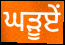
ਘੜੂਏਂ